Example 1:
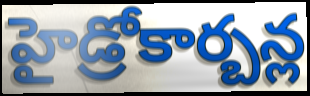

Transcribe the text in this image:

హైడ్రోకార్బన్ల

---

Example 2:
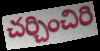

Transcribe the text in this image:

చర్చించిరి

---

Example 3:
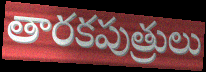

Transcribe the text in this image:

తారకపుత్రులు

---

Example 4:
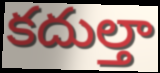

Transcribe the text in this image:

కదుల్తా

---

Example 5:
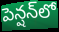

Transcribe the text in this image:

పెన్షన్‌లో